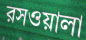
রসওয়ালা